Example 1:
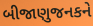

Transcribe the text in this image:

બીજાણુજનકને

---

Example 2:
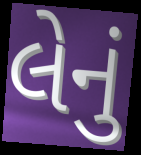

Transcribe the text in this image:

લેનું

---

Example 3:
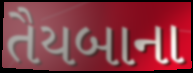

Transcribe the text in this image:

તૈયબાના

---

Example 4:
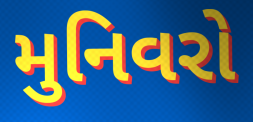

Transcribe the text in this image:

મુનિવરો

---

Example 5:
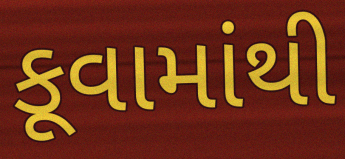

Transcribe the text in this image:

કૂવામાંથી